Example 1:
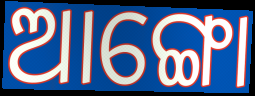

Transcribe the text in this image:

ଆଙ୍ଗୋ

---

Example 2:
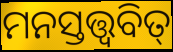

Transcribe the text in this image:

ମନସ୍ତତ୍ତ୍ଵବିତ୍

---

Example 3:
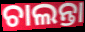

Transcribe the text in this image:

ଚାଲନ୍ତା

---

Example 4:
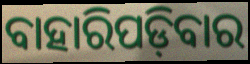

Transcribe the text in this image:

ବାହାରିପଡ଼ିବାର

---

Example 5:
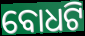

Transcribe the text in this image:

ବୋଧଟି